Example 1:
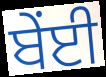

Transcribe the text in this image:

ਬੇਂਈ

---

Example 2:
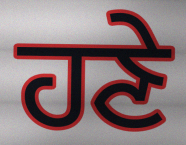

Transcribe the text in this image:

ਹਣੇ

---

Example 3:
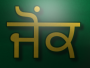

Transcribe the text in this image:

ਜੋਂਕ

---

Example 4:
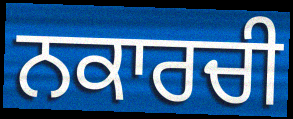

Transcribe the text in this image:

ਨਕਾਰਚੀ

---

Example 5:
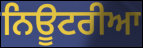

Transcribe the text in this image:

ਨਿਊਟਰੀਆ